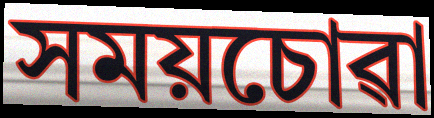
সময়চোৱা